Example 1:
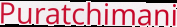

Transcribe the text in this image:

Puratchimani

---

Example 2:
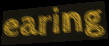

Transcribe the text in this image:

earing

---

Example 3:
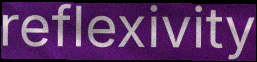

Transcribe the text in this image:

reflexivity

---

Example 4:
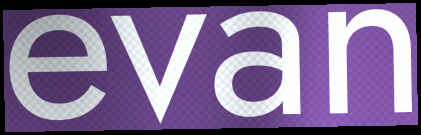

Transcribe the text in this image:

evan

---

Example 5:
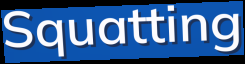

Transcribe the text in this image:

Squatting